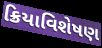
ક્રિયાવિશેષણ